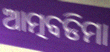
ଆତ୍ମବଡିମା